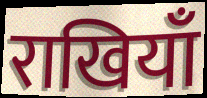
राखियाँ